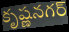
కృష్ణనగర్